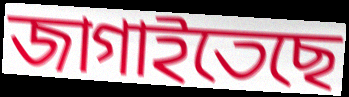
জাগাইতেছে